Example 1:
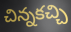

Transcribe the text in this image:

చిన్నకచ్చి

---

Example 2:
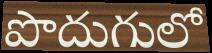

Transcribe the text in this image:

పొదుగులో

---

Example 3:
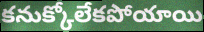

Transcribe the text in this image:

కనుక్కోలేకపోయాయి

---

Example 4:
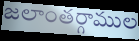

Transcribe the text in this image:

జలాంతర్గాముల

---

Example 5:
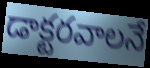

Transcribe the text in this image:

డాక్టరవాలనే